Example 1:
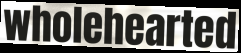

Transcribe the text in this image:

wholehearted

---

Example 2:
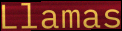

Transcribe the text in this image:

Llamas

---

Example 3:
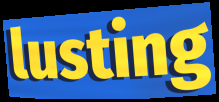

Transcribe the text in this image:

lusting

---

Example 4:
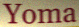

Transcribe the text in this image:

Yoma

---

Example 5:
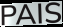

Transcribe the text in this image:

PAIS